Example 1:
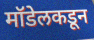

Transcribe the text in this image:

मॉडेलकडून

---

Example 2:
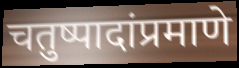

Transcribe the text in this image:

चतुष्पादांप्रमाणे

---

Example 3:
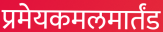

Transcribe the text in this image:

प्रमेयकमलमार्तंड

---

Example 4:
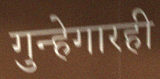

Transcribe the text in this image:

गुन्हेगारही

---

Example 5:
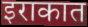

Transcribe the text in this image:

इराकात